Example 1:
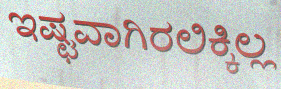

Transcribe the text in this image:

ಇಷ್ಟವಾಗಿರಲಿಕ್ಕಿಲ್ಲ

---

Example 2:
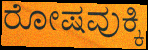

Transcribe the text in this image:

ರೋಷವುಕ್ಕಿ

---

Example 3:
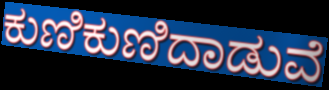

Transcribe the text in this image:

ಕುಣಿಕುಣಿದಾಡುವೆ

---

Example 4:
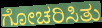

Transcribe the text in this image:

ಗೋಚರಿಸಿತು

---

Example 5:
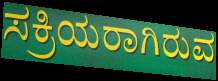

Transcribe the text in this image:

ಸಕ್ರಿಯರಾಗಿರುವ